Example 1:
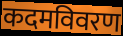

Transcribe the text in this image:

कदमविवरण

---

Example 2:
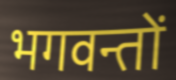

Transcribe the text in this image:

भगवन्तों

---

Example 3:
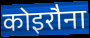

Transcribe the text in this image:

कोइरौना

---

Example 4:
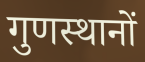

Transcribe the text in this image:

गुणस्थानों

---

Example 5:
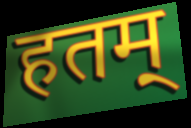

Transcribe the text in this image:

हतम्